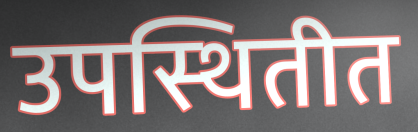
उपस्थितीत